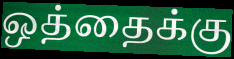
ஒத்தைக்கு